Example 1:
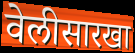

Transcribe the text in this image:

वेलीसारखा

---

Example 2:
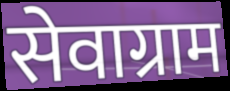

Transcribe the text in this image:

सेवाग्राम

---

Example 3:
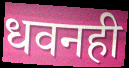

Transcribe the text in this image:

धवनही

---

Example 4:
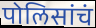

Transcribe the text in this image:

पोलिसांचं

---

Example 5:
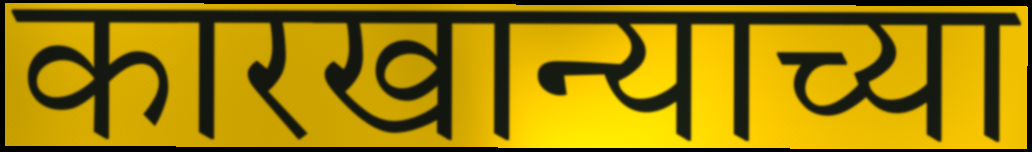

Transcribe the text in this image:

कारखान्याच्या